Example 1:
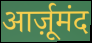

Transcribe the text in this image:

आर्ज़ूमंद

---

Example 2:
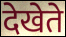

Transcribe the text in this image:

देखेते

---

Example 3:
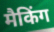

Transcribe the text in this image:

मैकिंग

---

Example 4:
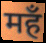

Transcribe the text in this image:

महँ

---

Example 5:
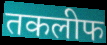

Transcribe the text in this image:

तकलीफ